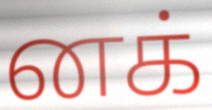
னக்